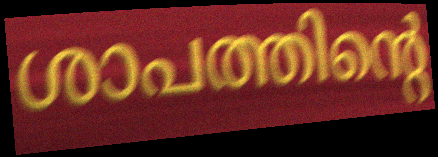
ശാപത്തിന്റെ